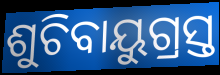
ଶୁଚିବାୟୁଗ୍ରସ୍ତ